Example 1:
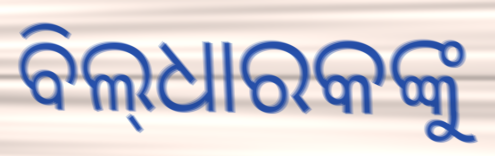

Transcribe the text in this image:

ବିଲ୍‌ଧାରକଙ୍କୁ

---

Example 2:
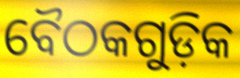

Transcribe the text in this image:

ବୈଠକଗୁଡ଼ିକ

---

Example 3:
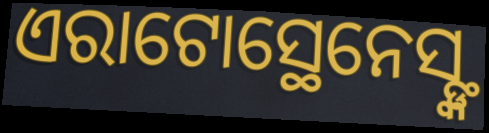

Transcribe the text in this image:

ଏରାଟୋସ୍ଥେନେସ୍ଙ୍କ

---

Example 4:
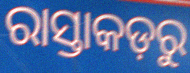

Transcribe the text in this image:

ରାସ୍ତାକଡ଼ରୁ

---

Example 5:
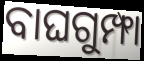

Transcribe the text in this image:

ବାଘଗୁମ୍ଫା